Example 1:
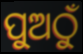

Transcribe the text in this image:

ପୁଅଠୁଁ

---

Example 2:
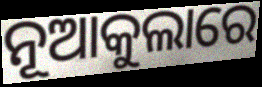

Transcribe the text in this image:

ନୂଆକୁଲାରେ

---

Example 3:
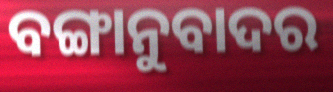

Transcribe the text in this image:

ବଙ୍ଗାନୁବାଦର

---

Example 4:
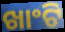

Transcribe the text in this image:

ଖାଂଟି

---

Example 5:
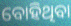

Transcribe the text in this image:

ବୋହିଥିବା